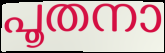
പൂതനാ